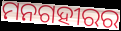
ମନଗହୀରର